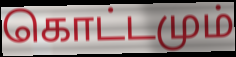
கொட்டமும்